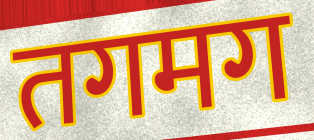
तगमग